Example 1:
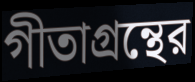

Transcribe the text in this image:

গীতাগ্রন্থের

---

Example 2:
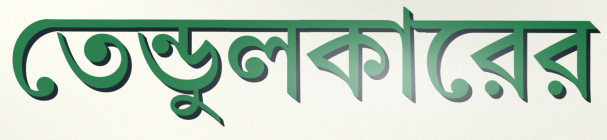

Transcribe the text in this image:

তেন্ডুলকারের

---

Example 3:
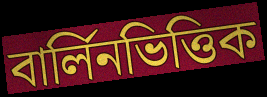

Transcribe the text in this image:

বার্লিনভিত্তিক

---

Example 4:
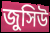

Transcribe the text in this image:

জুসিউ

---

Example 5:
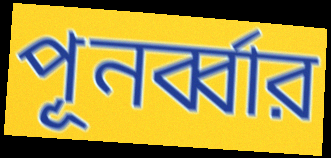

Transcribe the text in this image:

পূনর্ব্বার